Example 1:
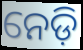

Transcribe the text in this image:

ନେଡ଼ି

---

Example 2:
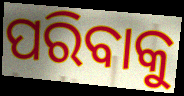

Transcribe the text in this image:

ପରିବାକୁ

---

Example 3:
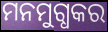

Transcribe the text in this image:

ମନମୁଗ୍ଧକର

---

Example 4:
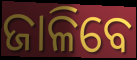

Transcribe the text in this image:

ଜାଳିବେ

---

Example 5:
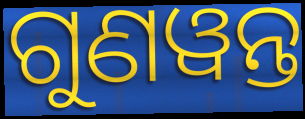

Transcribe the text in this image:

ଗୁଣୱନ୍ତ